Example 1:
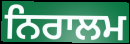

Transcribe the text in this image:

ਨਿਰਾਲਮ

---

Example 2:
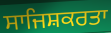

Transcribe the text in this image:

ਸਾਜਿਸ਼ਕਰਤਾ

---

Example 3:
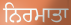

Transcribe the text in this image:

ਨਿਰਮਾਤਾ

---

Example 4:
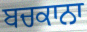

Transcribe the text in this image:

ਬਚਕਾਨਾ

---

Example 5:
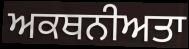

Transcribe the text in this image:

ਅਕਥਨੀਅਤਾ